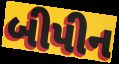
બીપીન